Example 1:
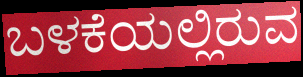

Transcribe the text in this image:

ಬಳಕೆಯಲ್ಲಿರುವ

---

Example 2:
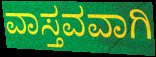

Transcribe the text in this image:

ವಾಸ್ತವವಾಗಿ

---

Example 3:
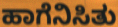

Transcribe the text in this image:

ಹಾಗೆನಿಸಿತು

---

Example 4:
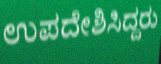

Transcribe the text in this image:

ಉಪದೇಶಿಸಿದ್ದರು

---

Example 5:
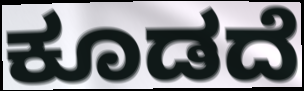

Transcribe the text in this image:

ಕೂಡದೆ